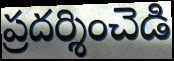
ప్రదర్శించెడి